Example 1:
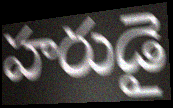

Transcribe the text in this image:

హరుడై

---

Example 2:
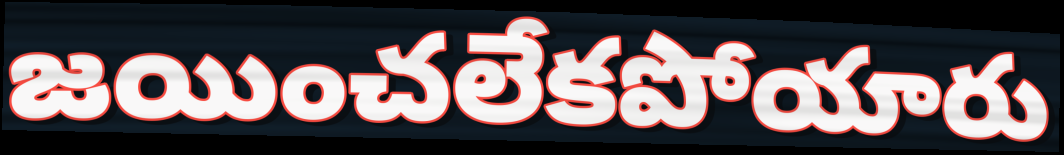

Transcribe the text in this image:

జయించలేకపోయారు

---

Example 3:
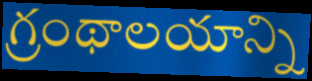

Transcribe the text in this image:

గ్రంథాలయాన్ని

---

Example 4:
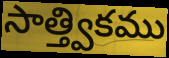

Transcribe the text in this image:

సాత్త్వికము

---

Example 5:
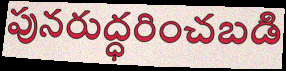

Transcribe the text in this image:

పునరుద్ధరించబడి